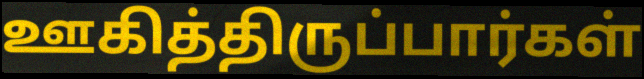
ஊகித்திருப்பார்கள்